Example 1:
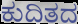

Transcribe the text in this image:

ಕುದಿತದ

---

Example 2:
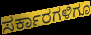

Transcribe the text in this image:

ಸರ್ಕಾರಗಳಿಗೂ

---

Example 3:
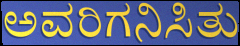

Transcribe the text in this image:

ಅವರಿಗನಿಸಿತು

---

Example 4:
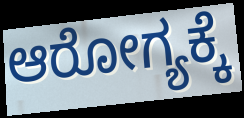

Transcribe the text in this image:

ಆರೋಗ್ಯಕ್ಕೆ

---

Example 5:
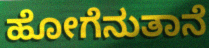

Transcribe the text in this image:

ಹೋಗೆನುತಾನೆ